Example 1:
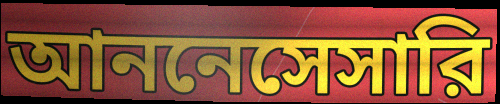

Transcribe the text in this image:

আননেসেসারি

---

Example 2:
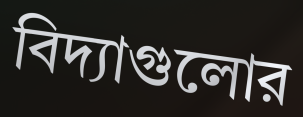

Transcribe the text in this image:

বিদ্যাগুলোর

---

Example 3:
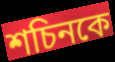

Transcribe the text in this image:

শচিনকে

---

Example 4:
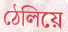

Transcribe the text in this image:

ঠেলিয়ে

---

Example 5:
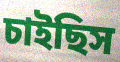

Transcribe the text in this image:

চাইছিস